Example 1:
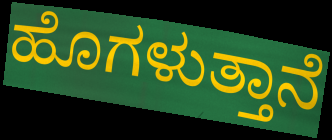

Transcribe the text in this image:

ಹೊಗಳುತ್ತಾನೆ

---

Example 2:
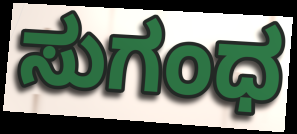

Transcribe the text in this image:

ಸುಗಂಧ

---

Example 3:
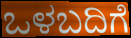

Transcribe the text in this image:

ಒಳಬದಿಗೆ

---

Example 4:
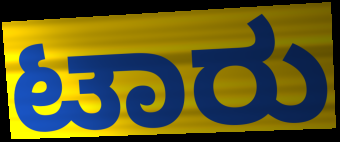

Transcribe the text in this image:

ಟಾರು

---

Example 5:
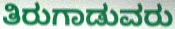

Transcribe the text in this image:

ತಿರುಗಾಡುವರು